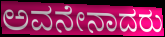
ಅವನೇನಾದರು